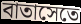
বাতাসেতে